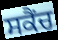
ਸਕੈਂਚ